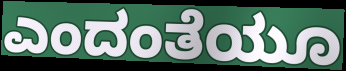
ಎಂದಂತೆಯೂ